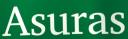
Asuras